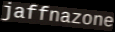
jaffnazone